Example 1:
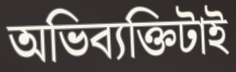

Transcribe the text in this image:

অভিব্যক্তিটাই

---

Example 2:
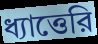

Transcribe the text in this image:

ধ্যাত্তেরি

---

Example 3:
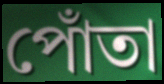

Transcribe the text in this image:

পোঁতা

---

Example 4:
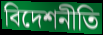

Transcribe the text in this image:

বিদেশনীতি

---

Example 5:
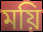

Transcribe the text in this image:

ময়ি